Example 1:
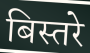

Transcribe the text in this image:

बिस्तरे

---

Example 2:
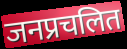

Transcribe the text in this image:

जनप्रचलित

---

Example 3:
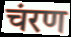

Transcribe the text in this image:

चंरण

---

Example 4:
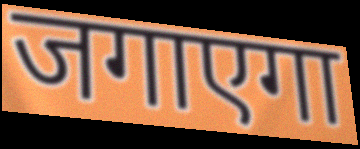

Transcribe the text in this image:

जगाएगा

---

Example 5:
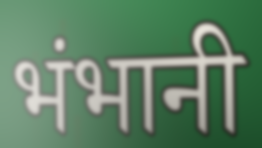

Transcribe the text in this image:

भंभानी